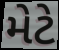
મેટે